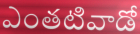
ఎంతటివాడో